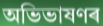
অভিভাষণৰ